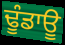
ਢੂੰਡਾਊ